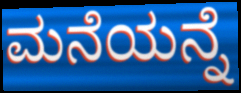
ಮನೆಯನ್ನೆ